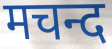
मचन्द